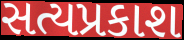
સત્યપ્રકાશ